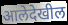
आलेदेखील